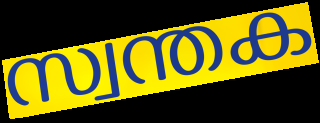
സ്വന്തക